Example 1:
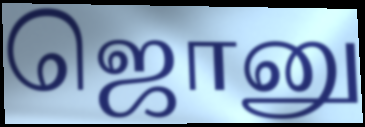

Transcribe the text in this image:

ஜொனு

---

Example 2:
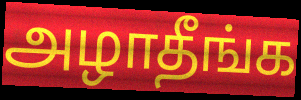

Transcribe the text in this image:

அழாதீங்க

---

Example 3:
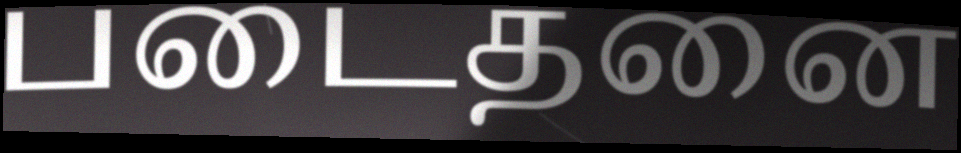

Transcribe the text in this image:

படைதனை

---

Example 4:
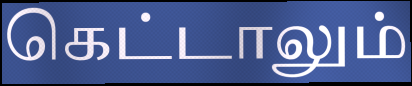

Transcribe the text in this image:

கெட்டாலும்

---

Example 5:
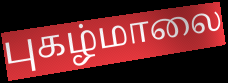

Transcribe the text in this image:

புகழ்மாலை